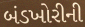
બંડખોરીની